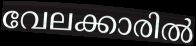
വേലക്കാരിൽ